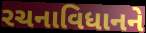
રચનાવિધાનને